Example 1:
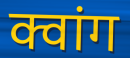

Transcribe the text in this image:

क्वांग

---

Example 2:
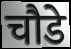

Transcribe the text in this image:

चौडे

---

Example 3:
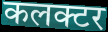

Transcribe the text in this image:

कलक्टर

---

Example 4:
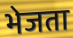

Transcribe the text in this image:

भेजता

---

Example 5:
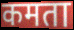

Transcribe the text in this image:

कमता